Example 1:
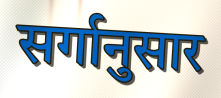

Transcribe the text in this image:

सर्गानुसार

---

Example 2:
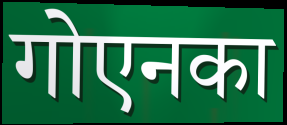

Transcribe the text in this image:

गोएनका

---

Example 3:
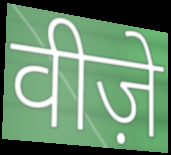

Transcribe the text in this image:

वीज़े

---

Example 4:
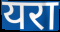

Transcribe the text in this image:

यरा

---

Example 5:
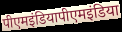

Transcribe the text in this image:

पीएमइंडियापीएमइंडिया